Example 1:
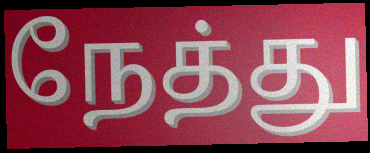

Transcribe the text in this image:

நேத்து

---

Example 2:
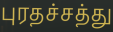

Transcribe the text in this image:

புரதச்சத்து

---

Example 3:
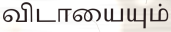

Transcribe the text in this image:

விடாயையும்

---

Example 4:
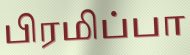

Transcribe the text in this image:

பிரமிப்பா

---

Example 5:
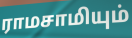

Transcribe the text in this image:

ராமசாமியும்